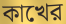
কাখের